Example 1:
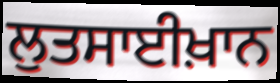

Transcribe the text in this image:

ਲੁਤਸਾਈਖ਼ਾਨ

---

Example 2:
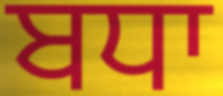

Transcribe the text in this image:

ਬਧਾ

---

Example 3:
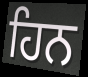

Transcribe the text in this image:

ਹਿਨ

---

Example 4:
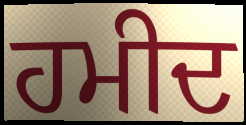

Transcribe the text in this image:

ਹਮੀਦ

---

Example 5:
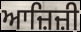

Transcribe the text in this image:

ਆਜ਼ਿਜ਼ੀ